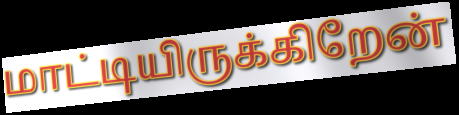
மாட்டியிருக்கிறேன்